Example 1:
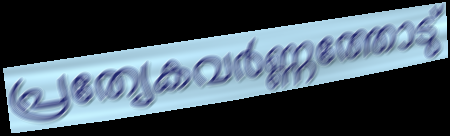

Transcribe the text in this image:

പ്രത്യേകവർണ്ണത്തോടു്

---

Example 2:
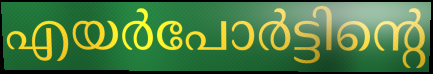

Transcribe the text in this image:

എയർപോർട്ടിന്റെ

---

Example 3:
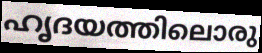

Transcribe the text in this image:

ഹൃദയത്തിലൊരു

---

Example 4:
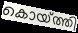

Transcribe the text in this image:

കൊയ്‌ത്തി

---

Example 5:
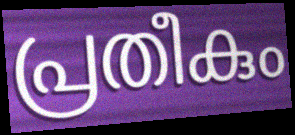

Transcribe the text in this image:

പ്രതീകും